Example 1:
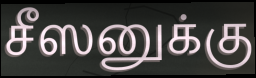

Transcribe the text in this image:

சீஸனுக்கு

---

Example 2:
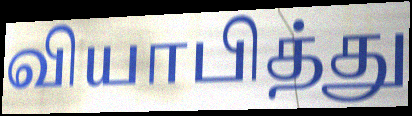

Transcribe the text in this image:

வியாபித்து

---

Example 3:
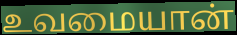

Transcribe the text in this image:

உவமையான்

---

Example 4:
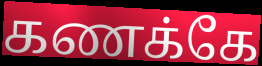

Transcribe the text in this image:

கணக்கே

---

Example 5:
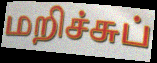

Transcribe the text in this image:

மறிச்சுப்